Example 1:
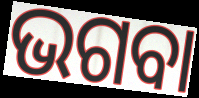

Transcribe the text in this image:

ଭଗବା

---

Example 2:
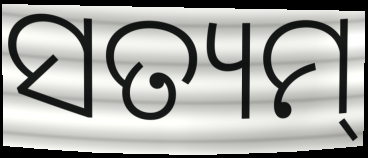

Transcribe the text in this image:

ସତ୍ୟମ୍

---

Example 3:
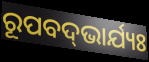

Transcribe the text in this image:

ରୂପବଦ୍‌ଭାର୍ଯ୍ୟଃ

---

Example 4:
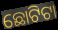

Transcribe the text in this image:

ଛୋଟିଟା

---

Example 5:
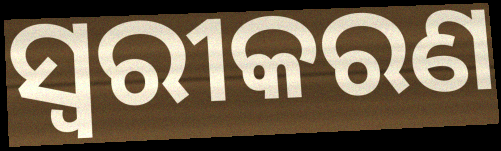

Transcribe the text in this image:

ସ୍ୱରୀକରଣ